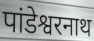
पांडेश्वरनाथ